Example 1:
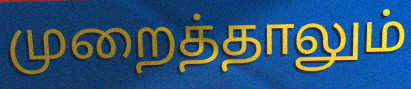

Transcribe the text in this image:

முறைத்தாலும்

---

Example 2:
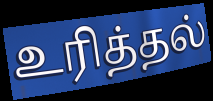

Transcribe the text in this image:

உரித்தல்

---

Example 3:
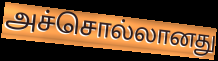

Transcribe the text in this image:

அச்சொல்லானது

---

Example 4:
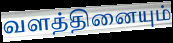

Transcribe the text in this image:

வளத்தினையும்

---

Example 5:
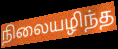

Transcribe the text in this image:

நிலையழிந்த